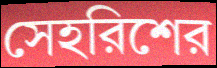
সেহরিশের